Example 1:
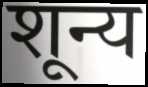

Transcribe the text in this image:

शून्य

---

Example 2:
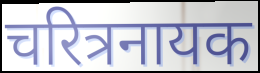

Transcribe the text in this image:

चरित्रनायक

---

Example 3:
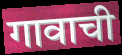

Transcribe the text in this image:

गावाची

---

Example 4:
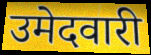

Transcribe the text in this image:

उमेदवारी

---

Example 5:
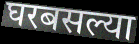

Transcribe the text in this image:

घरबसल्या